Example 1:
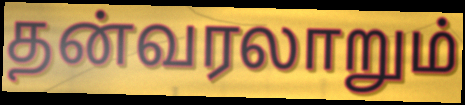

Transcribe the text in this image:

தன்வரலாறும்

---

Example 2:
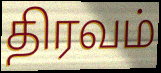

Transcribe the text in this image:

திரவம்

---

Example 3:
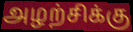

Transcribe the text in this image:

அழற்சிக்கு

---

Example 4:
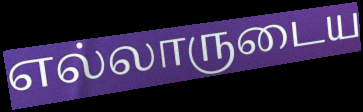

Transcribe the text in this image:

எல்லாருடைய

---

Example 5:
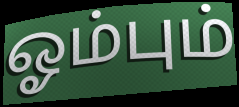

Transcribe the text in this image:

ஓம்பும்